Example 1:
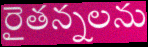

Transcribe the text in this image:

రైతన్నలను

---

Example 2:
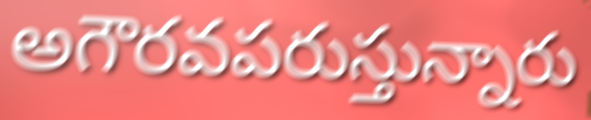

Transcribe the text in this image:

అగౌరవపరుస్తున్నారు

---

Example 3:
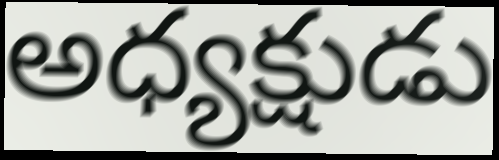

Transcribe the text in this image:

అధ్యక్షుడు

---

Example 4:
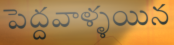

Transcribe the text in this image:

పెద్దవాళ్ళయిన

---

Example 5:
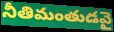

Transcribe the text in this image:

నీతిమంతుడవై